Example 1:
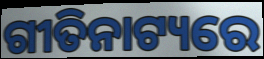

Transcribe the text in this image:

ଗୀତିନାଟ୍ୟରେ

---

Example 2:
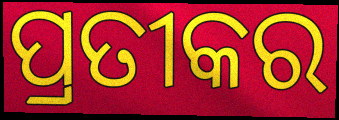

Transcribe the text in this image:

ପ୍ରତୀକର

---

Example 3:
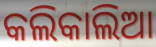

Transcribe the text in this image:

କଲିକାଲିଆ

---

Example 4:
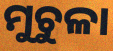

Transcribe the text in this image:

ମୁଚୁଳା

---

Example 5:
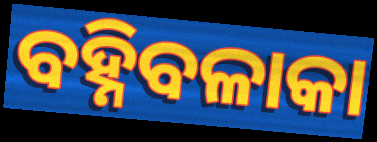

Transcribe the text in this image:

ବହ୍ନିବଳାକା